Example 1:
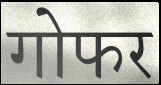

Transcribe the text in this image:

गोफर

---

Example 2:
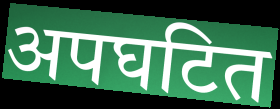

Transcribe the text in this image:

अपघटित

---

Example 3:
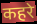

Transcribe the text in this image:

कहरे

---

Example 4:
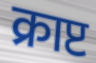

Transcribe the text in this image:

क्राप्ट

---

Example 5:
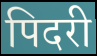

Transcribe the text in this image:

पिदरी